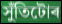
সুঁতিটোৰ